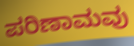
ಪರಿಣಾಮವು